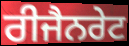
ਰੀਜੈਨਰੇਟ